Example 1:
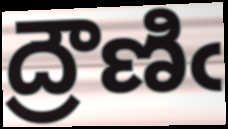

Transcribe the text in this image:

ద్రౌణిఁ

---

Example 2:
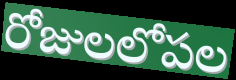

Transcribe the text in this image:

రోజులలోపల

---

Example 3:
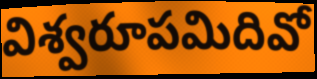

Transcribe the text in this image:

విశ్వరూపమిదివో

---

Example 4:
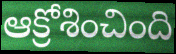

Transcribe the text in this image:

ఆక్రోశించింది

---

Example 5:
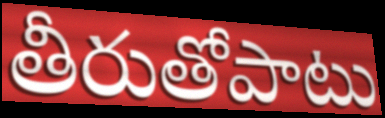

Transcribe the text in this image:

తీరుతోపాటు